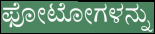
ಫೋಟೋಗಳನ್ನು